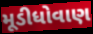
મૂડીધોવાણ